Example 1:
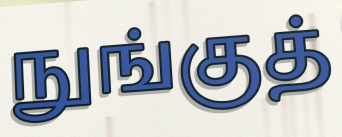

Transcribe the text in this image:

நுங்குத்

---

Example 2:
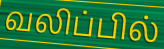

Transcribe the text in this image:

வலிப்பில்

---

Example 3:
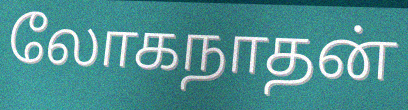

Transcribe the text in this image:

லோகநாதன்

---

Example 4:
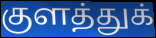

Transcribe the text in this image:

குளத்துக்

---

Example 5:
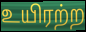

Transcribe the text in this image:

உயிரற்ற